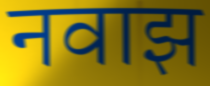
नवाझ